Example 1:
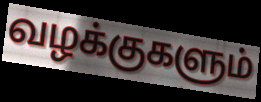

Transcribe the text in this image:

வழக்குகளும்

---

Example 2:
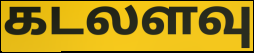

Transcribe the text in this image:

கடலளவு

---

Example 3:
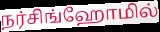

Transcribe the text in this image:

நர்சிங்ஹோமில்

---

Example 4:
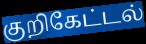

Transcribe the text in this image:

குறிகேட்டல்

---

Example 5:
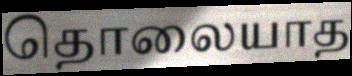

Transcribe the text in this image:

தொலையாத